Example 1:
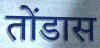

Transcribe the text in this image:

तोंडास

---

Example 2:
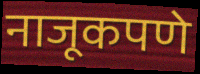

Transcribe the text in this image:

नाजूकपणे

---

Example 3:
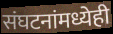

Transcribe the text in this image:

संघटनांमध्येही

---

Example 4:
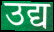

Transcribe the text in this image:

उद्य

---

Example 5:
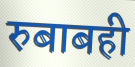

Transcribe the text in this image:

रुबाबही